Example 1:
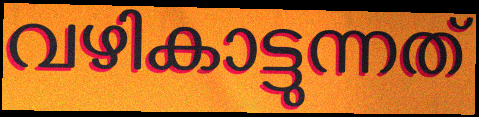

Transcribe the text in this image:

വഴികാട്ടുന്നത്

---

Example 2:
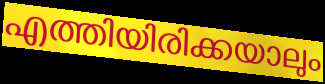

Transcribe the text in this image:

എത്തിയിരിക്കയാലും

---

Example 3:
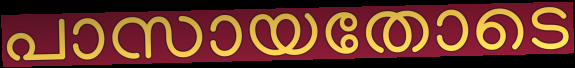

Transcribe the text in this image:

പാസായതോടെ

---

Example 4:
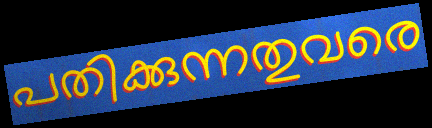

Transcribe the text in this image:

പതിക്കുന്നതുവരെ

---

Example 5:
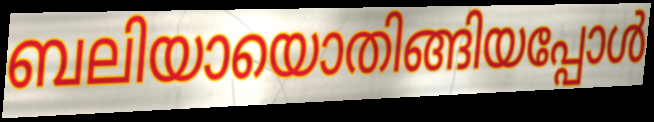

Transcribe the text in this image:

ബലിയായൊതിങ്ങിയപ്പോൾ